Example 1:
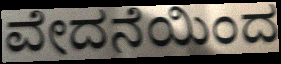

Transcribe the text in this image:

ವೇದನೆಯಿಂದ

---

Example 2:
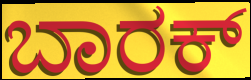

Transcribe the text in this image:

ಬಾರಕ್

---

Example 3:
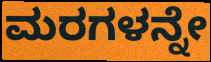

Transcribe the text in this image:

ಮರಗಳನ್ನೇ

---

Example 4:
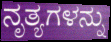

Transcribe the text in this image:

ನೃತ್ಯಗಳನ್ನು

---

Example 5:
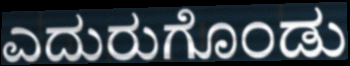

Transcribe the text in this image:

ಎದುರುಗೊಂಡು